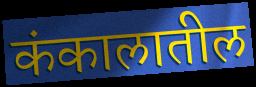
कंकालातील